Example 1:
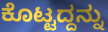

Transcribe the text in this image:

ಕೊಟ್ಟದ್ದನ್ನು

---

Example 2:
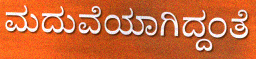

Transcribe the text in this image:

ಮದುವೆಯಾಗಿದ್ದಂತೆ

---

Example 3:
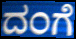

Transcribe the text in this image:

ದಂಗೆ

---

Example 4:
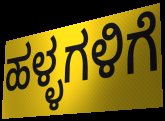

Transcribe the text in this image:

ಹಳ್ಳಗಳಿಗೆ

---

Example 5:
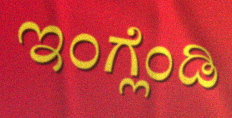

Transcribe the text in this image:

ಇಂಗ್ಲೆಂಡಿ